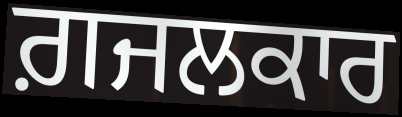
ਗ਼ਜਲਕਾਰ